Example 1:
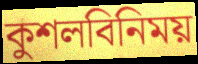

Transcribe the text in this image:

কুশলবিনিময়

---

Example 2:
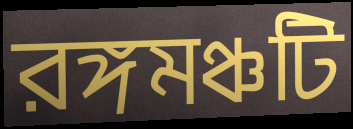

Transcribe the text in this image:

রঙ্গমঞ্চটি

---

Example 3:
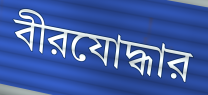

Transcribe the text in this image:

বীরযোদ্ধার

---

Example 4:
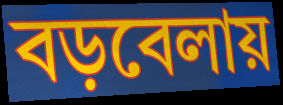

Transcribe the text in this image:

বড়বেলায়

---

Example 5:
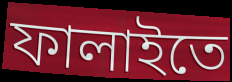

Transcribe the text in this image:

ফালাইতে